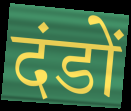
दंडों